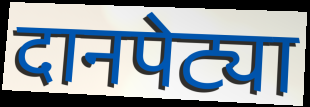
दानपेट्या